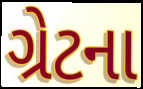
ગ્રેટના